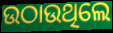
ଉଠାଉଥିଲେ